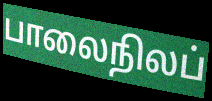
பாலைநிலப்